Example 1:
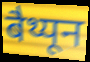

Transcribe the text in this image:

बैथ्यून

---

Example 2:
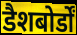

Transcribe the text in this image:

डैशबोर्डों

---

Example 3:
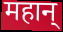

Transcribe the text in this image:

महान्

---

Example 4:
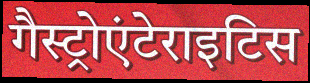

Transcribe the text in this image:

गैस्ट्रोएंटेराइटिस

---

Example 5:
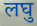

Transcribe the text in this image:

लघु